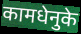
कामधेनुके